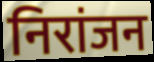
निरांजन